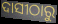
ଦାସୀଠାରୁ